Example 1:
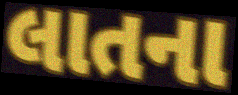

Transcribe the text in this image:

લાતના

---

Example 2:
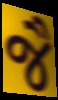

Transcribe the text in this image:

જૈ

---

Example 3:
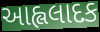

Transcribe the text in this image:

આહ્લલાદક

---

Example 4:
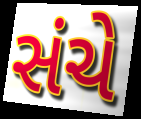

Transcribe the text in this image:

સંચે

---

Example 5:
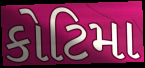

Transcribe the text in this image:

કોટિમા